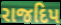
રાજદિપ